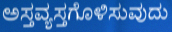
ಅಸ್ತವ್ಯಸ್ತಗೊಳಿಸುವುದು